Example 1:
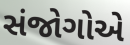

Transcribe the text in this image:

સંજોગોએ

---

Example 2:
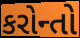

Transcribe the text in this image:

કરોન્તો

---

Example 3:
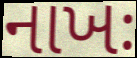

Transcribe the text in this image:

નાખઃ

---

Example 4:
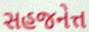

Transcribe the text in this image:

સહજનેત્ત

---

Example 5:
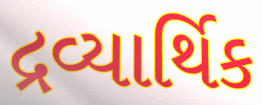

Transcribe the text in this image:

દ્રવ્યાર્થિક